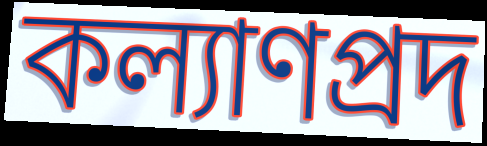
কল্যাণপ্রদ